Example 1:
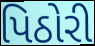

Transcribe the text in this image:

પિઠોરી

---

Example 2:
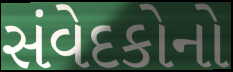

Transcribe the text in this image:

સંવેદકોનો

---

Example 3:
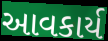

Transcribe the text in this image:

આવકાર્ય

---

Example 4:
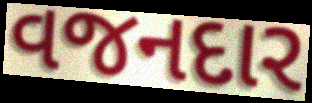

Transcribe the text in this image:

વજનદાર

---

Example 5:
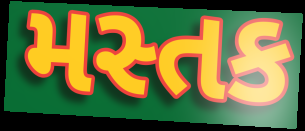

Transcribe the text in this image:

મસ્તક